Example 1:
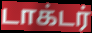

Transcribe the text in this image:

டாக்டர்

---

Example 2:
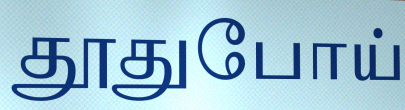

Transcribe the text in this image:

தூதுபோய்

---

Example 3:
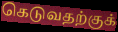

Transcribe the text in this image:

கெடுவதற்குக்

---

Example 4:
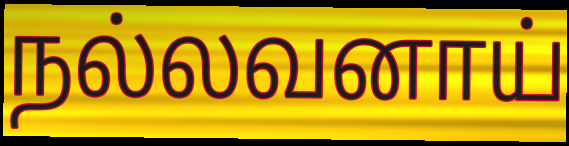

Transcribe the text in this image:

நல்லவனாய்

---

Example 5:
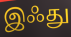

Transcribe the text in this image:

இஃது